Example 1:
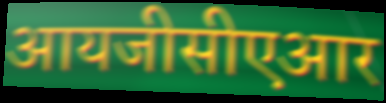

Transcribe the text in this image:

आयजीसीएआर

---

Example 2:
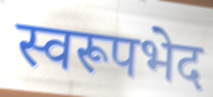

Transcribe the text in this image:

स्वरूपभेद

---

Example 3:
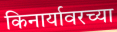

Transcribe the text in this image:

किनार्यावरच्या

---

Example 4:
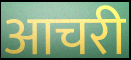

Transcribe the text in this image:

आचरी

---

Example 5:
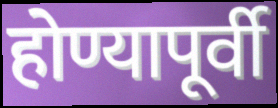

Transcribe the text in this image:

होण्यापूर्वी